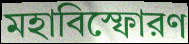
মহাবিস্ফোরণ